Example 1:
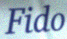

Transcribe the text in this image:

Fido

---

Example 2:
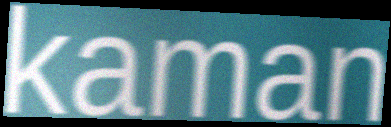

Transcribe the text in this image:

kaman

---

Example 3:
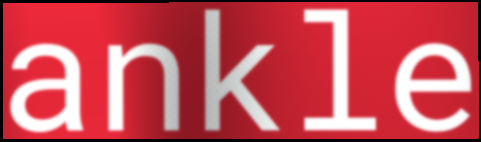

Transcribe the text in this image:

ankle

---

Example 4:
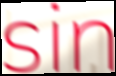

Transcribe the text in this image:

sin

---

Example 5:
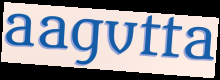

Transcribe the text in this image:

aagutta